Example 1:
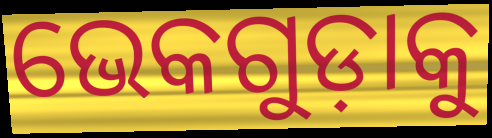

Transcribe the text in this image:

ଭେକଗୁଡ଼ାକୁ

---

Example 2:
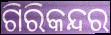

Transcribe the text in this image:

ଗିରିକନ୍ଦର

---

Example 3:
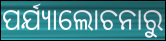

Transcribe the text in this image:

ପର୍ଯ୍ୟାଲୋଚନାରୁ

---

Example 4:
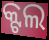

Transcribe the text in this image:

କ୍ଟଲ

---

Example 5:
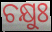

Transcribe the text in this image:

ଚକ୍ଷୁଃ